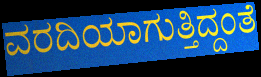
ವರದಿಯಾಗುತ್ತಿದ್ದಂತೆ